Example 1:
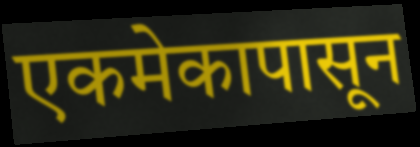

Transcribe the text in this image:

एकमेकापासून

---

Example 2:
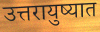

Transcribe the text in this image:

उत्तरायुष्यात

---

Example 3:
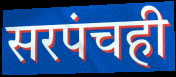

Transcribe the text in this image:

सरपंचही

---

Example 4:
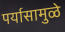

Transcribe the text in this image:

पर्यासामुळे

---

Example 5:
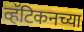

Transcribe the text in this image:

व्हॅटिकनच्या